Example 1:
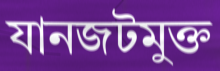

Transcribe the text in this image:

যানজটমুক্ত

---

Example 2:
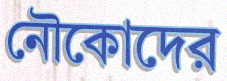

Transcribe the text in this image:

নৌকোদের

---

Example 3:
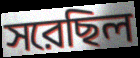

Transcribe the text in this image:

সরেছিল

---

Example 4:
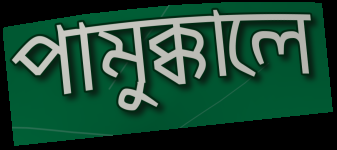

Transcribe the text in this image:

পামুক্কালে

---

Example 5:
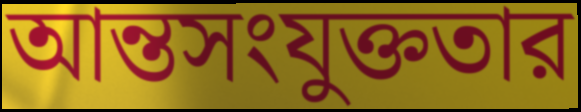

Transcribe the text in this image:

আন্তসংযুক্ততার